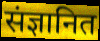
संज्ञानित